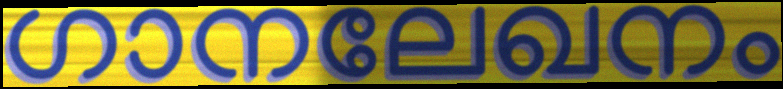
ഗാനലേഖനം